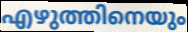
എഴുത്തിനെയും